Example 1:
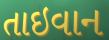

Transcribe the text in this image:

તાઇવાન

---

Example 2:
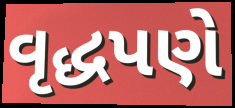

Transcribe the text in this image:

વૃદ્ધપણે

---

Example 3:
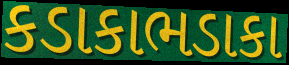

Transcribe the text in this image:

કડાકાભડાકા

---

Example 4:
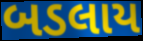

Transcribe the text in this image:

બડલાય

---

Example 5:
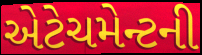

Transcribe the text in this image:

એટેચમેન્ટની